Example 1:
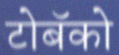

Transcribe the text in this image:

टोबॅको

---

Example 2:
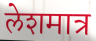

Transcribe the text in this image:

लेशमात्र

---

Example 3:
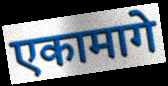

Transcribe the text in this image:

एकामागे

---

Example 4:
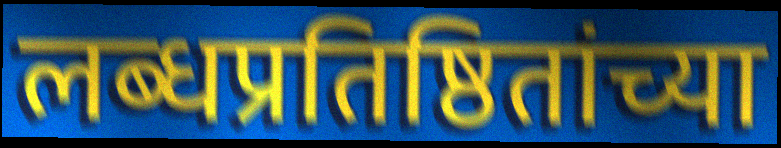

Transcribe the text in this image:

लब्धप्रतिष्ठितांच्या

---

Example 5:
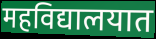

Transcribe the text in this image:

महविद्यालयात